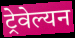
ट्रेवेल्यन